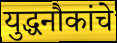
युद्धनौकांचे